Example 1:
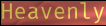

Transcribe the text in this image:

Heavenly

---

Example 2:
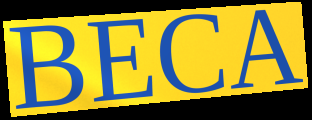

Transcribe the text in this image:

BECA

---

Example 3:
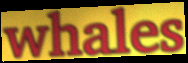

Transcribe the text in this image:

whales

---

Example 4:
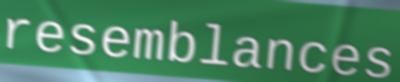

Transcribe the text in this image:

resemblances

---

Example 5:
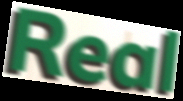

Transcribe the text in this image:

Real